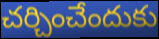
చర్చించేందుకు